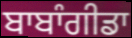
ਬਾਬਾੰਗੀਡਾ